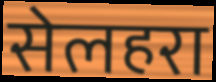
सेलहरा